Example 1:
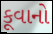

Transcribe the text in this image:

કૂવાનો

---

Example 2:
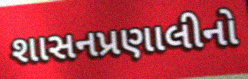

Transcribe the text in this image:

શાસનપ્રણાલીનો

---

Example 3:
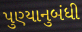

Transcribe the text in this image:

પુણ્યાનુબંધી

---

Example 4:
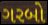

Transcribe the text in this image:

ગરબો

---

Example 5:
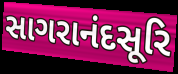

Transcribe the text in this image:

સાગરાનંદસૂરિ